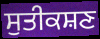
ਸੁਤੀਕਸ਼ਣ